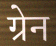
ग्रेन